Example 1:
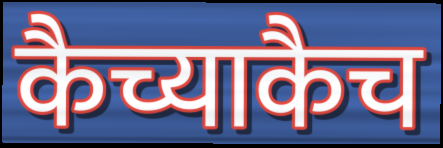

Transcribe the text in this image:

कैच्याकैच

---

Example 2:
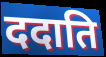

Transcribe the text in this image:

ददाति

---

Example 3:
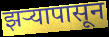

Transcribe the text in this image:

झऱ्यापासून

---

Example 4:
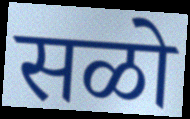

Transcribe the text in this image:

सळो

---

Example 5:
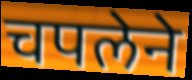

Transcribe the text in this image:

चपलेने